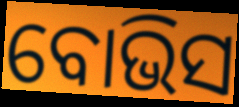
ବୋଭିସ